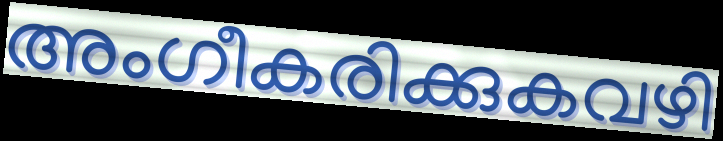
അംഗീകരിക്കുകവഴി